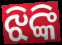
ଝିଙ୍କି